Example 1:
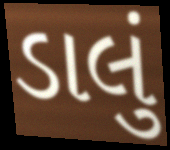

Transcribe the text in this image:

ડાલું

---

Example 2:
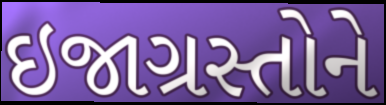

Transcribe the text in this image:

ઇજાગ્રસ્તોને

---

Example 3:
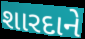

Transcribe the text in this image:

શારદાને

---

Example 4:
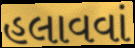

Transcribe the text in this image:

હલાવવાં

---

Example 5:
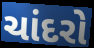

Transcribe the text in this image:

ચાંદરો